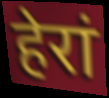
हेरां